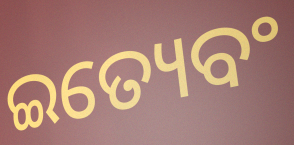
ଇତ୍ୟେବଂ